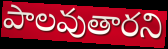
పాలవుతారని